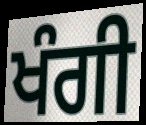
ਖੰਗੀ